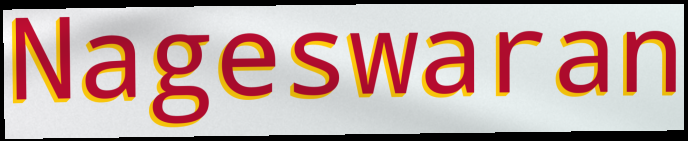
Nageswaran